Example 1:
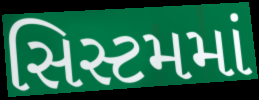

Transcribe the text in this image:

સિસ્ટમમાં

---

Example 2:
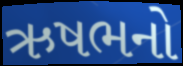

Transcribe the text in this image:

ઋષભનો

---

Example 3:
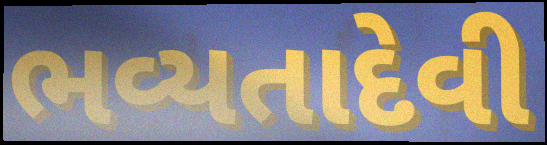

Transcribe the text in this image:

ભવ્યતાદેવી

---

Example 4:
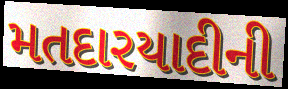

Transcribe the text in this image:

મતદારયાદીની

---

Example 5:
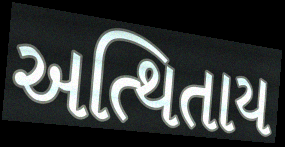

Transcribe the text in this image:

અત્થિતાય